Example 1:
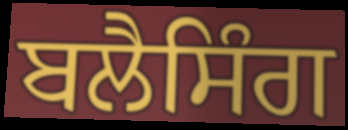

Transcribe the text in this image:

ਬਲੈਸਿੰਗ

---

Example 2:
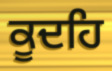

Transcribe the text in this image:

ਕੂਦਹਿ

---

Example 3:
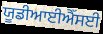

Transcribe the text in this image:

ਯੂਡੀਆਈਐੱਸਈ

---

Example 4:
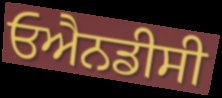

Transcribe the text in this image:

ਓਐਨਡੀਸੀ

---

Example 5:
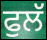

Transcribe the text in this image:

ਫੁਲੱ